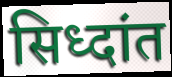
सिध्दांत